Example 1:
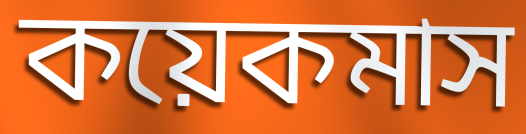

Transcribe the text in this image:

কয়েকমাস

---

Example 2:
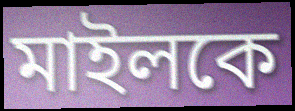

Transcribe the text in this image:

মাইলকে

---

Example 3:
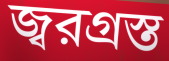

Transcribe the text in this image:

জ্বরগ্রস্ত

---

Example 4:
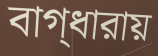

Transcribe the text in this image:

বাগ্‌ধারায়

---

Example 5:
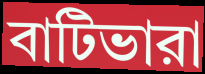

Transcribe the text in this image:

বাটিভারা